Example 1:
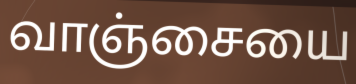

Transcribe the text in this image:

வாஞ்சையை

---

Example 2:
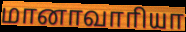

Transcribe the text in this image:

மானாவாரியா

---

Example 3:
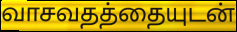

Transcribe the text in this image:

வாசவதத்தையுடன்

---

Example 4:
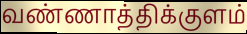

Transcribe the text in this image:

வண்ணாத்திக்குளம்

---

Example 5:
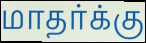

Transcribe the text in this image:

மாதர்க்கு